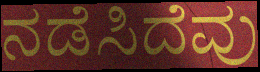
ನಡೆಸಿದೆವು